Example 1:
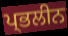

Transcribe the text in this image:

ਪ੍ਭਲੀਨ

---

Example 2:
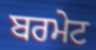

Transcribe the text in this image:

ਬਰਮੇਟ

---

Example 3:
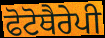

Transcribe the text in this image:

ਫੋਟੋਥੈਰੇਪੀ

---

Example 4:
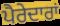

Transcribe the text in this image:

ਪੈਰੇਦਾਰਾਂ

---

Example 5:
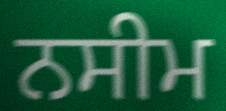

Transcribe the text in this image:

ਨਸੀਮ